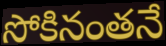
సోకినంతనే